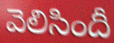
వెలిసిందీ